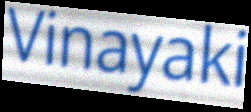
Vinayaki